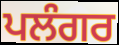
ਪਲੰਗਰ